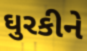
ઘુરકીને